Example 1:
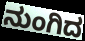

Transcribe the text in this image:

ನುಂಗಿದ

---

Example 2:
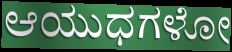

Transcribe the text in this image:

ಆಯುಧಗಳೋ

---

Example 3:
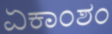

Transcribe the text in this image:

ಏಕಾಂಶಂ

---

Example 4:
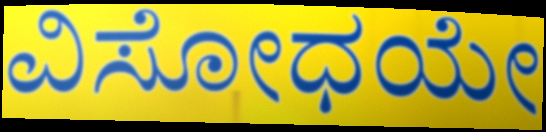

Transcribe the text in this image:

ವಿಸೋಧಯೇ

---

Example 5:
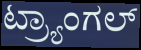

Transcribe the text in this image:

ಟ್ರ್ಯಾಂಗಲ್